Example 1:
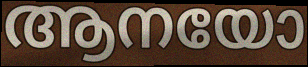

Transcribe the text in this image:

ആനയോ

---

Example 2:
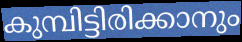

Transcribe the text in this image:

കുമ്പിട്ടിരിക്കാനും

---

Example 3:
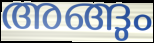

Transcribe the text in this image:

അങ്ങും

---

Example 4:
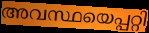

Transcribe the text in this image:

അവസ്ഥയെപ്പറ്റി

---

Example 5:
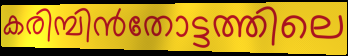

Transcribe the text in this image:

കരിമ്പിൻതോട്ടത്തിലെ